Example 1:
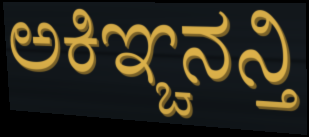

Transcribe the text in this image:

ಅಕಿಞ್ಚನನ್ತಿ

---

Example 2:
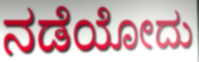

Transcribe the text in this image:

ನಡೆಯೋದು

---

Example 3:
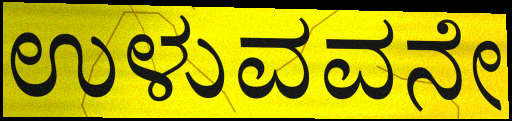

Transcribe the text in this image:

ಉಳುವವನೇ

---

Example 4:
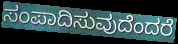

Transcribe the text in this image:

ಸಂಪಾದಿಸುವುದೆಂದರೆ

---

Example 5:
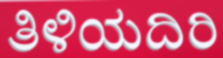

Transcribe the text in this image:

ತಿಳಿಯದಿರಿ